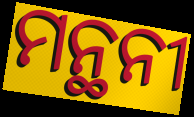
ମନ୍ଥନୀ